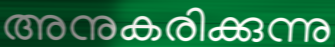
അനുകരിക്കുന്നു